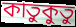
কাতুকুতু